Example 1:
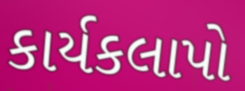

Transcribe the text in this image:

કાર્યકલાપો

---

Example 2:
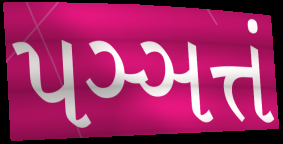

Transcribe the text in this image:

પઞ્ઞત્તં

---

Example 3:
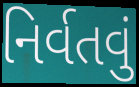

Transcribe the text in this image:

નિર્વતવું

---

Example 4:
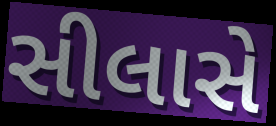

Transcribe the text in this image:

સીલાસે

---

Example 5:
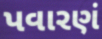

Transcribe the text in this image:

પવારણં